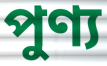
পুণ্য